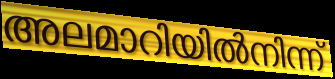
അലമാറിയിൽനിന്ന്